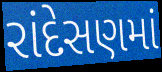
રાંદેસણમાં